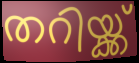
തറിയ്ക്ക്